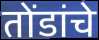
तोंडांचे